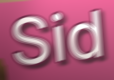
Sid